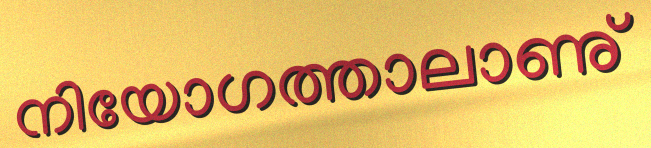
നിയോഗത്താലാണു്